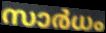
സാർധം